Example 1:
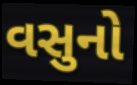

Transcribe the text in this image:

વસુનો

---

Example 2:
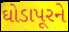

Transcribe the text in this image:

ઘોડાપૂરને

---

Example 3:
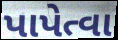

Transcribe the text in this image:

પાપેત્વા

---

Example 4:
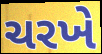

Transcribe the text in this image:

ચરખે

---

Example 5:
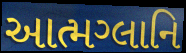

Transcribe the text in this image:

આત્મગ્લાનિ